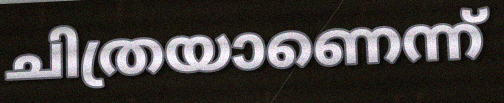
ചിത്രയാണെന്ന്